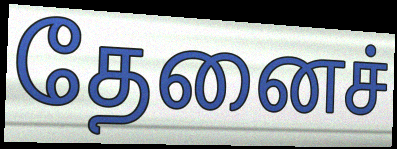
தேனைச்